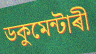
ডকুমেন্টাৰী